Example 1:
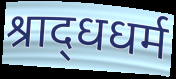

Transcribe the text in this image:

श्राद्धधर्म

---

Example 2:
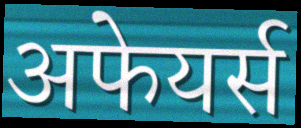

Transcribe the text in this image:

अफेयर्स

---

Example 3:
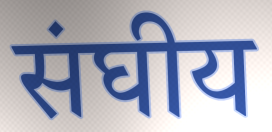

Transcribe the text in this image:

संघीय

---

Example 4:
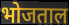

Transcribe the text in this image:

भोजताल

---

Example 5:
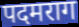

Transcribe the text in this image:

पदमराग